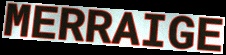
MERRAIGE